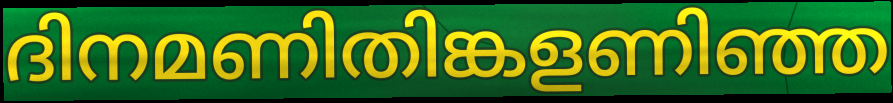
ദിനമണിതിങ്കളണിഞ്ഞ